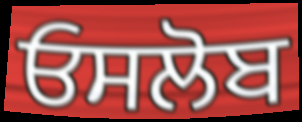
ਓਸਲੋਬ